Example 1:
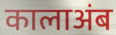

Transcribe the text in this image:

कालाअंब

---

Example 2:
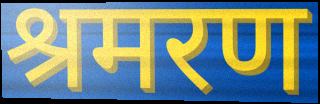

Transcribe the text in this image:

श्रमरण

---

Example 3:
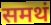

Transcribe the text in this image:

समथं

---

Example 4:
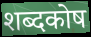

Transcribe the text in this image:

शब्दकोष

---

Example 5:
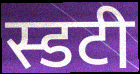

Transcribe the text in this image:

स्डटी